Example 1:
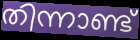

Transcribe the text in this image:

തിന്നാണ്ട്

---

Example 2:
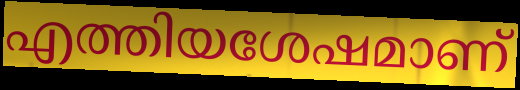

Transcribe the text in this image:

എത്തിയശേഷമാണ്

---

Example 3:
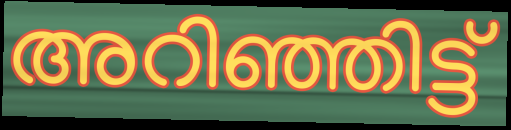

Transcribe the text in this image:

അറിഞ്ഞിട്ട്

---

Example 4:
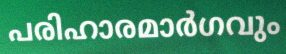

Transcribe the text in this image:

പരിഹാരമാർഗവും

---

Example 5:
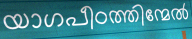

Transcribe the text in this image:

യാഗപീഠത്തിന്മേൽ